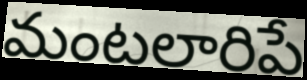
మంటలారిపే